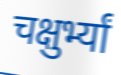
चक्षुर्भ्यां